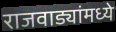
राजवाड्यांमध्ये